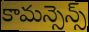
కామన్సెన్స్